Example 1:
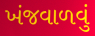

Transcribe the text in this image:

ખંજવાળવું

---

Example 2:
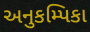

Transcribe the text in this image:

અનુકમ્પિકા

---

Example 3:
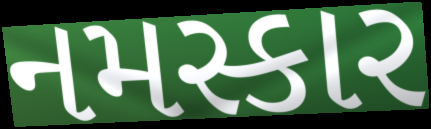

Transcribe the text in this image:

નમસ્કાર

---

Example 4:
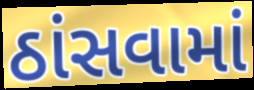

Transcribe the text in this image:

ઠાંસવામાં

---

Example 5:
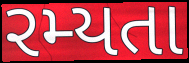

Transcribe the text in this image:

રમ્યતા